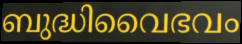
ബുദ്ധിവൈഭവം